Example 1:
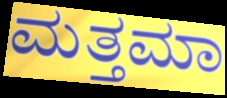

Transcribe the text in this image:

ಮತ್ತಮಾ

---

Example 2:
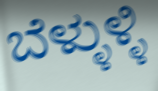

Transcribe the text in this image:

ಬೆಳ್ಳುಳ್ಳಿ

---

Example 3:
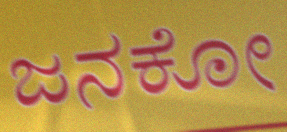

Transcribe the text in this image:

ಜನಕೋ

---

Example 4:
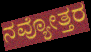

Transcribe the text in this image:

ನವ್ಯೋತ್ತರ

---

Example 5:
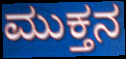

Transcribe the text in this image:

ಮುಕ್ತನ